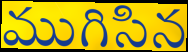
ముగిసిన